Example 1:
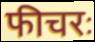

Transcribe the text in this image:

फीचरः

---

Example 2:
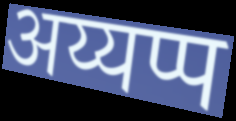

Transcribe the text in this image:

अय्यप्प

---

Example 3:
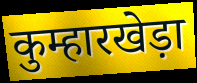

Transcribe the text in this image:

कुम्हारखेड़ा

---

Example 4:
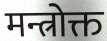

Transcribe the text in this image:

मन्त्रोक्त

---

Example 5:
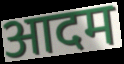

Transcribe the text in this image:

आदम